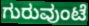
ಗುರುವುಂಟೆ